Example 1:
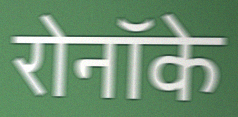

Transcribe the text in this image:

रोनॉके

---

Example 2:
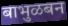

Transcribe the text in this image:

बाभुळबन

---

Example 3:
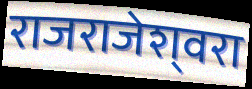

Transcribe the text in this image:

राजराजेश्वरा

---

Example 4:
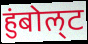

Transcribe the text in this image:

हुंबोल्ट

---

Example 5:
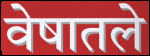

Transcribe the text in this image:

वेषातले